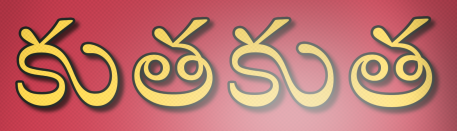
కుతకుత